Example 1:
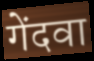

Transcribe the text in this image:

गेंदवा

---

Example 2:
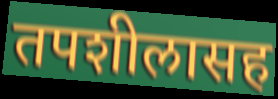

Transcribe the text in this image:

तपशीलासह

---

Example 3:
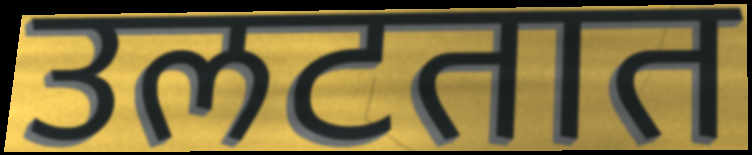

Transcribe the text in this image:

उलटतात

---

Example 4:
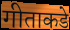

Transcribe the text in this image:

गीताकडे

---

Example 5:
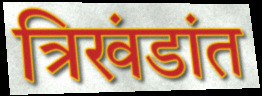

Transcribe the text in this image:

त्रिखंडांत